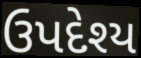
ઉપદેશ્ય